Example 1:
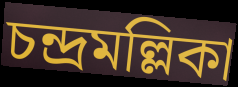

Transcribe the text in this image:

চন্দ্রমল্লিকা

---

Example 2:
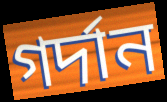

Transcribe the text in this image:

গর্দান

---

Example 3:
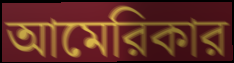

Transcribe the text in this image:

আমেরিকার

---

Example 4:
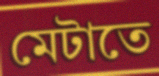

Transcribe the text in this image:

মেটাতে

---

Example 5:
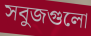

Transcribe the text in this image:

সবুজগুলো